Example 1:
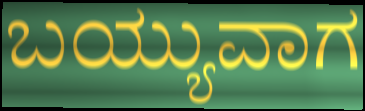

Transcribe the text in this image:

ಬಯ್ಯುವಾಗ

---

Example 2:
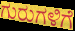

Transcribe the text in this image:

ಗುರುಗಳಿಗೆ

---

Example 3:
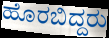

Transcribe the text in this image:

ಹೊರಬಿದ್ದರು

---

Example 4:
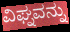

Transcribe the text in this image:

ವಿಘ್ನವನ್ನು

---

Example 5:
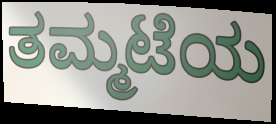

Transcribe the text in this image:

ತಮ್ಮಟೆಯ